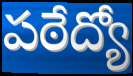
పఠేద్యో